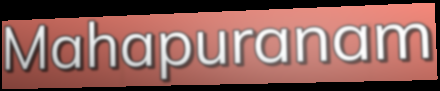
Mahapuranam